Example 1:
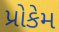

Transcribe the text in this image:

પ્રોકેમ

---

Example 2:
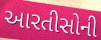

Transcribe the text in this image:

આરતીસોની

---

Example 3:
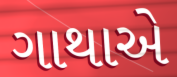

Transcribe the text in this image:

ગાથાએ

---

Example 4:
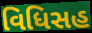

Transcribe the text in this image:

વિધિસહ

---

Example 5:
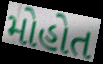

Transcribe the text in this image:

મોહોત